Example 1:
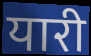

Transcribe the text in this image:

यारी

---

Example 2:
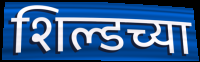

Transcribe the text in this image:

शिल्डच्या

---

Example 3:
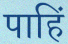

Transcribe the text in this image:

पाहिं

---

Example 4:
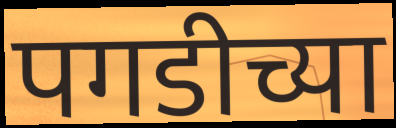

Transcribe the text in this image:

पगडीच्या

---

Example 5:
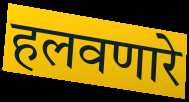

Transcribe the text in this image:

हलवणारे